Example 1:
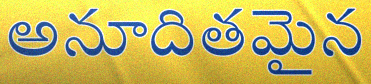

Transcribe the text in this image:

అనూదితమైన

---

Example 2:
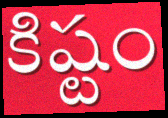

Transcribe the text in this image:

కిష్టం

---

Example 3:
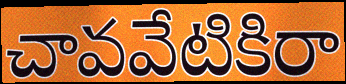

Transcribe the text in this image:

చావవేటికిరా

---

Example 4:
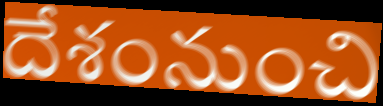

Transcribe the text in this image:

దేశంనుంచి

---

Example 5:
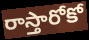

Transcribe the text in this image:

రాస్తారోకో